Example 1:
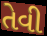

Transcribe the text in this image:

તેવી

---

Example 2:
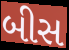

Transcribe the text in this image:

બીસ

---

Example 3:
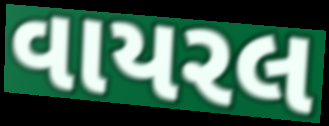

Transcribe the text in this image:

વાયરલ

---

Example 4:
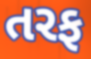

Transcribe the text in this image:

તરફ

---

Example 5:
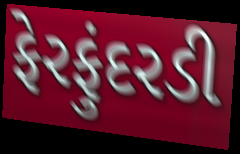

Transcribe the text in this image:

ફેરફુંદરડી